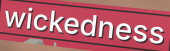
wickedness